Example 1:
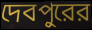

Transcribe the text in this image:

দেবপুরের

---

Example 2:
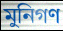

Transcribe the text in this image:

মুনিগণ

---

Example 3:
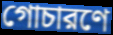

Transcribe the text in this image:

গোচারণে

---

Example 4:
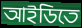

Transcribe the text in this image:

আইডিতে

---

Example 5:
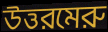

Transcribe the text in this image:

উত্তরমেরু